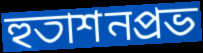
হুতাশনপ্রভ